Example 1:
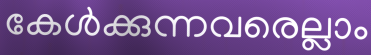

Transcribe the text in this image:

കേൾക്കുന്നവരെല്ലാം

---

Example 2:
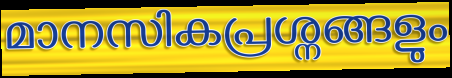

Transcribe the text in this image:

മാനസികപ്രശ്നങ്ങളും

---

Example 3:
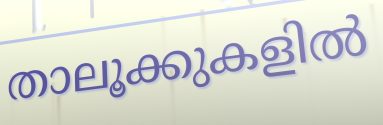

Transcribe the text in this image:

താലൂക്കുകളിൽ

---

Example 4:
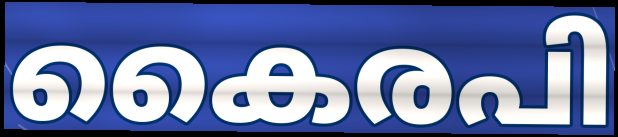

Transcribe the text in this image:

കൈരപി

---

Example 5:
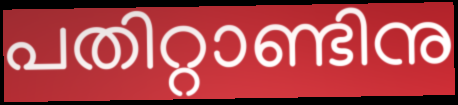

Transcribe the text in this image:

പതിറ്റാണ്ടിനു